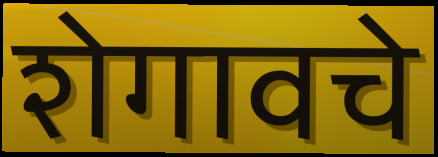
शेगावचे